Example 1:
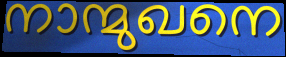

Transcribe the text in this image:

നാന്മുഖനെ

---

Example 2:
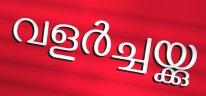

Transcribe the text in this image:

വളർച്ചയ്ക്കു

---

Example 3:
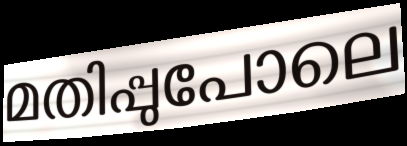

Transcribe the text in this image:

മതിപ്പുപോലെ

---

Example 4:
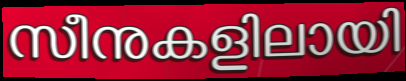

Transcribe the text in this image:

സീനുകളിലായി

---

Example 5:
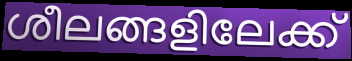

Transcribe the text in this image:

ശീലങ്ങളിലേക്ക്